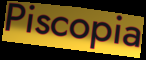
Piscopia